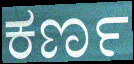
ಕರ್ಣ